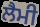
ਲੈਮੀ